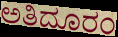
ಅತಿದೂರಂ